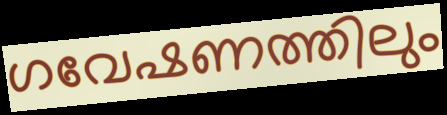
ഗവേഷണത്തിലും